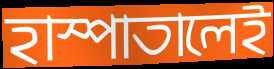
হাস্পাতালেই